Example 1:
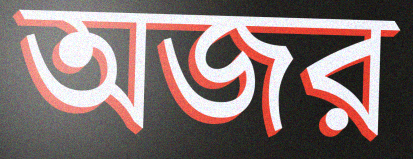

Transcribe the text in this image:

অজর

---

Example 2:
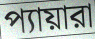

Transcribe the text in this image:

প্যায়ারা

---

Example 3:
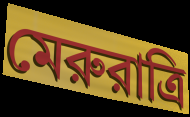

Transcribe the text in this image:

মেরুরাত্রি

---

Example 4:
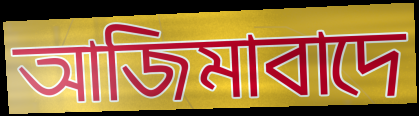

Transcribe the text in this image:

আজিমাবাদে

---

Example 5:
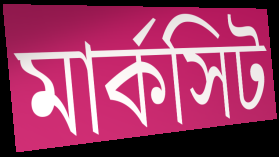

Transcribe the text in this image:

মার্কসিট